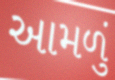
આમળું